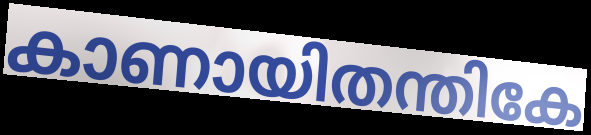
കാണായിതന്തികേ